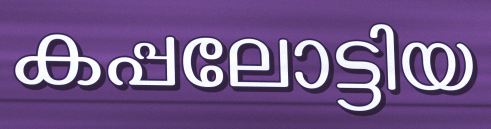
കപ്പലോട്ടിയ